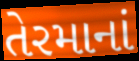
તેરમાનાં